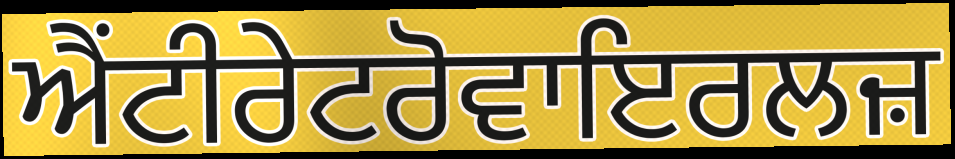
ਐਂਟੀਰੇਟਰੋਵਾਇਰਲਜ਼